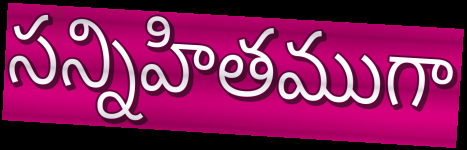
సన్నిహితముగా